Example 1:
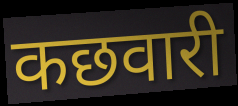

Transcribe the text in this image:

कछवारी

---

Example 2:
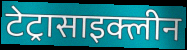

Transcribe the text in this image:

टेट्रासाइक्लीन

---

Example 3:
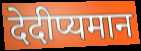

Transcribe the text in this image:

देदीप्यमान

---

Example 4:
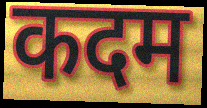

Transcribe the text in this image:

कदम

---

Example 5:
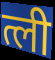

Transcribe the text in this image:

त्ली